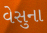
વેસુના